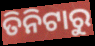
ତିନିଟାରୁ